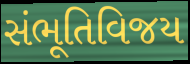
સંભૂતિવિજય